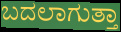
ಬದಲಾಗುತ್ತಾ